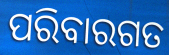
ପରିବାରଗତ